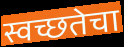
स्वच्छतेचा